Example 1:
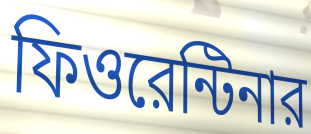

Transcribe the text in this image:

ফিওরেন্টিনার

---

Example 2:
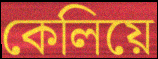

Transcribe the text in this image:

কেলিয়ে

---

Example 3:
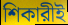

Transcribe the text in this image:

শিকারীই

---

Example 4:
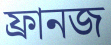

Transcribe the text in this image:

ফ্রানজ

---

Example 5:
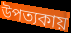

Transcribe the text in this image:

উপত্যকায়